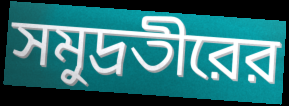
সমুদ্রতীরের